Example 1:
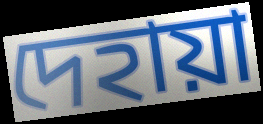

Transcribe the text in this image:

দেহায়া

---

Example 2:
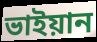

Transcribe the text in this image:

ভাইয়ান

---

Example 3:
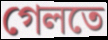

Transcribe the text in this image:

গেলতে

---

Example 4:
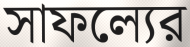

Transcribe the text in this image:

সাফল্যের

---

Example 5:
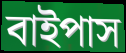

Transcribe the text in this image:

বাইপাস